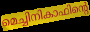
മെച്ചിനികാഫിന്റെ